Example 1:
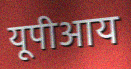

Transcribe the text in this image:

यूपीआय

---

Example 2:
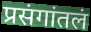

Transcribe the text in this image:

प्रसंगांतलं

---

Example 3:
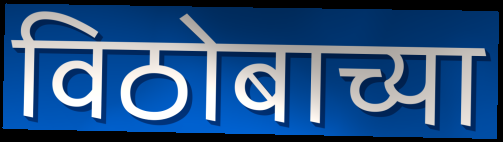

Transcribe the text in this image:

विठोबाच्या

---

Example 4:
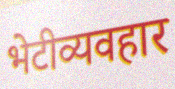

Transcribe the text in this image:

भेटीव्यवहार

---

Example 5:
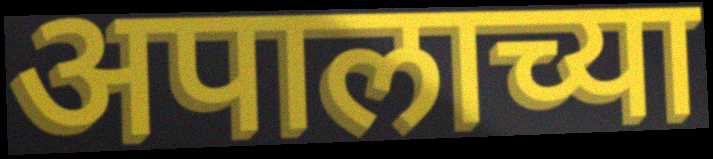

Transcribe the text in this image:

अपालाच्या